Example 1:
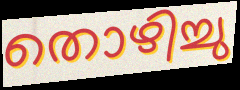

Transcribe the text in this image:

തൊഴിച്ചു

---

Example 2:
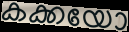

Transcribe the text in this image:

കക്കയോ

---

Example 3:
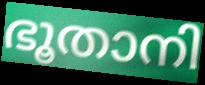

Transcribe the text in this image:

ഭൂതാനി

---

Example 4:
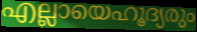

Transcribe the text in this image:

എല്ലായെഹൂദ്യരും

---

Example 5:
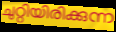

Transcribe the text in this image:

ചുറ്റിയിരിക്കുന്ന